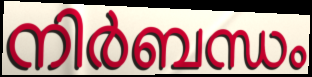
നിർബന്ധം